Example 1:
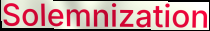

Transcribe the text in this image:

Solemnization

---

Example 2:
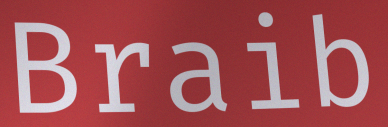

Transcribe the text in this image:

Braib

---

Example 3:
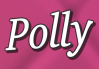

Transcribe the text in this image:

Polly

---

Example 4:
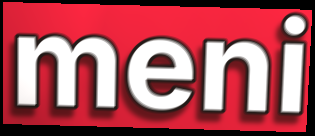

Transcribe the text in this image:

meni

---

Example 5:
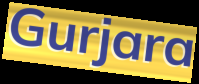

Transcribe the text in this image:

Gurjara